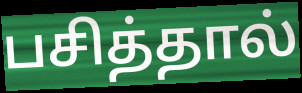
பசித்தால்